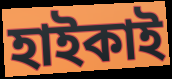
হাইকাই